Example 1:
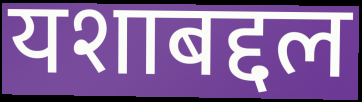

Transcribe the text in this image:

यशाबद्दल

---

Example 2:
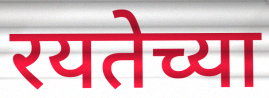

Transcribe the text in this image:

रयतेच्या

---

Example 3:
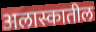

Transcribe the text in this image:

अलास्कातील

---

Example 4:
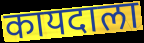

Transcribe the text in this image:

कायदाला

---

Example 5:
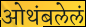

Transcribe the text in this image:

ओथंबलेलं